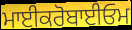
ਮਾਈਕਰੋਬਾਈਓਮ